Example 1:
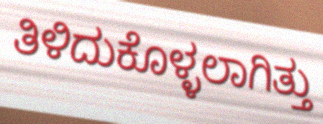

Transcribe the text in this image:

ತಿಳಿದುಕೊಳ್ಳಲಾಗಿತ್ತು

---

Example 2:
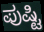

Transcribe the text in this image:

ಪುಷ್ಟಿ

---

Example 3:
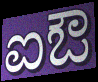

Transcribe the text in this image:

ಐಔ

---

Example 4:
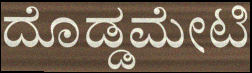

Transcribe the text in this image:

ದೊಡ್ಡಮೇಟಿ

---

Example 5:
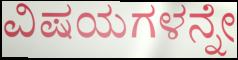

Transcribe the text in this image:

ವಿಷಯಗಳನ್ನೇ